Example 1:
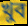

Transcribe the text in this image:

খুব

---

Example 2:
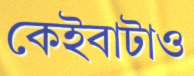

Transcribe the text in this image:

কেইবাটাও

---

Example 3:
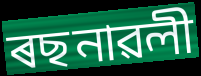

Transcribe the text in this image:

ৰছনাৱলী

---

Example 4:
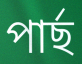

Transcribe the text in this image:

পাৰ্ছ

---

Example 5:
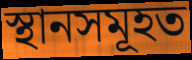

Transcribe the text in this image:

স্থানসমূহত